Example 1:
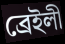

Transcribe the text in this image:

ব্রেইলী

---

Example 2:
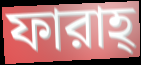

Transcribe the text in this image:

ফারাহ্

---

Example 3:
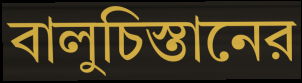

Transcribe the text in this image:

বালুচিস্তানের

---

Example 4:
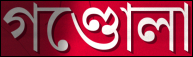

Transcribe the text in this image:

গণ্ডোলা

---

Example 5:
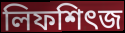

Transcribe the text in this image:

লিফশিৎজ